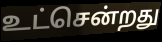
உட்சென்றது